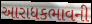
આરાધકભાવની